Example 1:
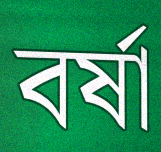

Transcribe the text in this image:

বর্ষা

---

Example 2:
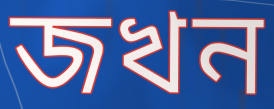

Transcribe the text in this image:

জখন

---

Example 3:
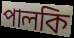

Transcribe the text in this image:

পালকি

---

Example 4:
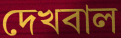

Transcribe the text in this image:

দেখবাল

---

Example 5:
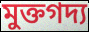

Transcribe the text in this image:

মুক্তগদ্য